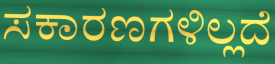
ಸಕಾರಣಗಳಿಲ್ಲದೆ